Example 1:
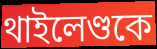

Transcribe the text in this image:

থাইলেণ্ডকে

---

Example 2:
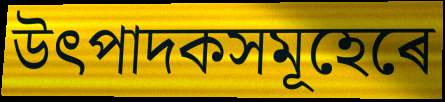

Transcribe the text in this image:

উৎপাদকসমূহেৰে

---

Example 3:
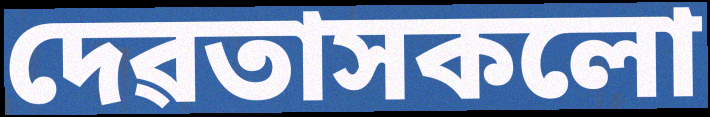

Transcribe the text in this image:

দেৱতাসকলো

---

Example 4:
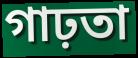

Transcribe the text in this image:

গাঢ়তা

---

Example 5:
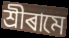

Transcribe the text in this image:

শ্ৰীৰামে